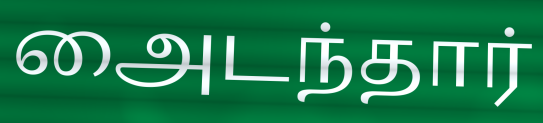
அைடந்தார்